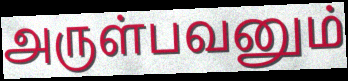
அருள்பவனும்